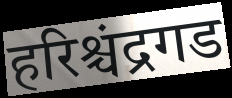
हरिश्चंद्रगड